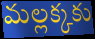
మల్లక్కకు